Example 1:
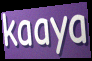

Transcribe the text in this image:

kaaya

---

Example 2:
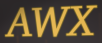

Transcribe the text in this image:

AWX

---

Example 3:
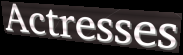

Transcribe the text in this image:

Actresses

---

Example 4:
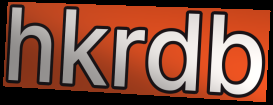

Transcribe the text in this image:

hkrdb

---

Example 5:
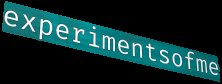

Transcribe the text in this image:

experimentsofme